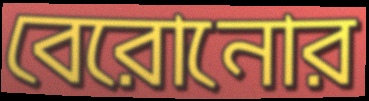
বেরোনোর